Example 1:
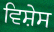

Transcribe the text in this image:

ਵਿਸ਼ੇਸ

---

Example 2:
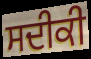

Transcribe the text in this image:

ਸਦੀਕੀ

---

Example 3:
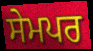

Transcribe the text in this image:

ਸੇਮਪਰ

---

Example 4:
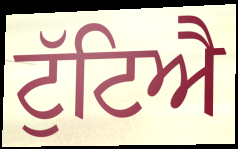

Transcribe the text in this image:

ਟੁੱਟਿਐ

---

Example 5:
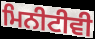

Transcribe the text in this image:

ਮਿਨੀਟੀਵੀ